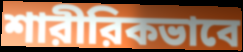
শারীরিকভাবে